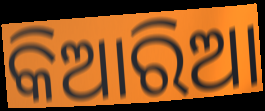
କିଆରିଆ